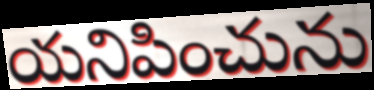
యనిపించును